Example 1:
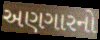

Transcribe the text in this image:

અણગારનો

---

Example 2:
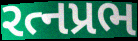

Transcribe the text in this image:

રત્નપ્રભ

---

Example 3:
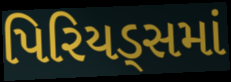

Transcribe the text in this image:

પિરિયડ્સમાં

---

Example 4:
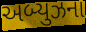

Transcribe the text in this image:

અબ્યુઝના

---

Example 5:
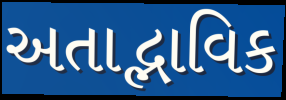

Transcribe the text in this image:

અતાદ્ભાવિક